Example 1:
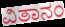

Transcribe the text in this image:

ವಿತಾನಂ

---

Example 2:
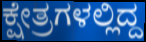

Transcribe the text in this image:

ಕ್ಷೇತ್ರಗಳಲ್ಲಿದ್ದ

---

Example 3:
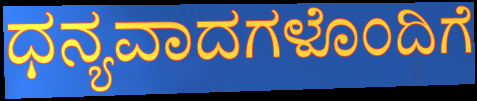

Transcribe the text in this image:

ಧನ್ಯವಾದಗಳೊಂದಿಗೆ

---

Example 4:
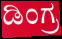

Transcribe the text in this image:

ಡಿಂಗ್ರ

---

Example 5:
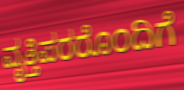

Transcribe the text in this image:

ವೃತ್ತಿಪರರೊಂದಿಗೆ